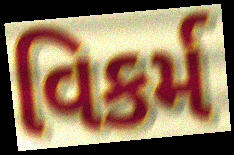
વિકર્મ